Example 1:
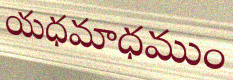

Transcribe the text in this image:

యధమాధముం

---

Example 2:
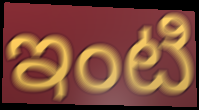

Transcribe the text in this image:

ఇంటి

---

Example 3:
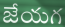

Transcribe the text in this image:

జేయగ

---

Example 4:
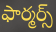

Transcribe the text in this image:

ఫార్మర్స్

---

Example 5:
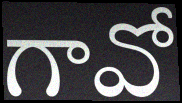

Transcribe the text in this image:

గావో